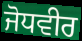
ਜੋਧਵੀਰ